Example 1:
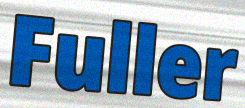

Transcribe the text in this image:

Fuller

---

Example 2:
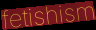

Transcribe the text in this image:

fetishism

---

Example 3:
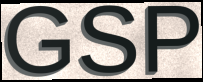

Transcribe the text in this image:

GSP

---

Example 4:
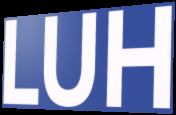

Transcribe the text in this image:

LUH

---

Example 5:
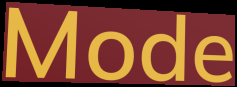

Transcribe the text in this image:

Mode